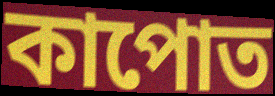
কাপোত